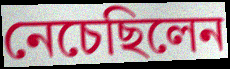
নেচেছিলেন